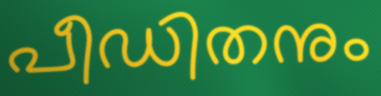
പീഡിതനും